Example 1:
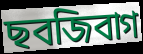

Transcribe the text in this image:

ছবজিবাগ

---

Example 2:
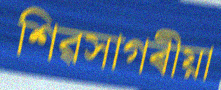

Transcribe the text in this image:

শিৱসাগৰীয়া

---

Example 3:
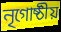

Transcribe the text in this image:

নৃগোষ্ঠীয়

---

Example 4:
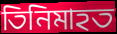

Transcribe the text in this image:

তিনিমাহত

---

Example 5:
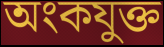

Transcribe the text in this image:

অংকযুক্ত